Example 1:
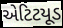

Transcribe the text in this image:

એટિટયૂડ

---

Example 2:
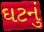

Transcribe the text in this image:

ઘટનું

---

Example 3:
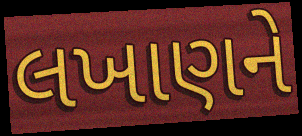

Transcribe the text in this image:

લખાણને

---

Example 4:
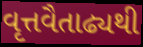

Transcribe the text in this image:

વૃત્તવૈતાઢ્યથી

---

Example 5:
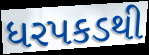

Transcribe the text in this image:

ધરપકડથી